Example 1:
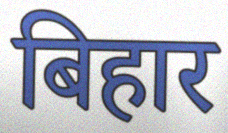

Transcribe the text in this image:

बिहार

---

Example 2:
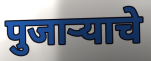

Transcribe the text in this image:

पुजाऱ्याचे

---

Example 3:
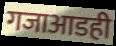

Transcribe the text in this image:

गजाआडही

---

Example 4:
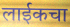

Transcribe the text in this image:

लाईकचा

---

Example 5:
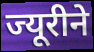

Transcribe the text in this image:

ज्यूरीने